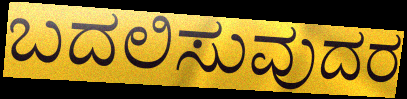
ಬದಲಿಸುವುದರ